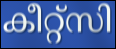
കീറ്റ്സി